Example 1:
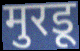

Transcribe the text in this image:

मुरडू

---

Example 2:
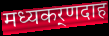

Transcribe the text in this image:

मध्यकर्णदाह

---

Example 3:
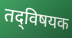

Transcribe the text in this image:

तद्‌विषयक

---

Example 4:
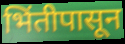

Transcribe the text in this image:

भिंतीपासून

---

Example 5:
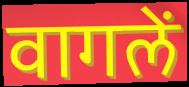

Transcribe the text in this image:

वागलें